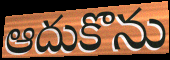
ఆదుకొను